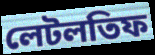
লেটলতিফ